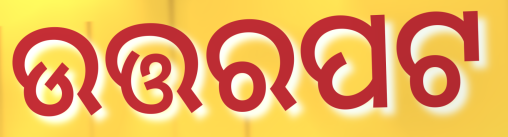
ଉତ୍ତରପଟ